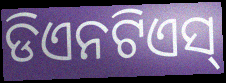
ଡିଏନଟିଏସ୍